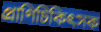
প্রাণিচিকিৎসক